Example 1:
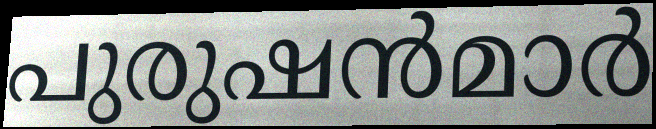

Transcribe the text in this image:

പുരുഷൻമാർ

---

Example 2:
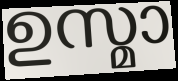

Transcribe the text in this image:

ഉസ്മാ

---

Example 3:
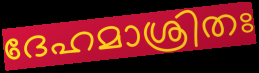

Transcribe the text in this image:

ദേഹമാശ്രിതഃ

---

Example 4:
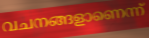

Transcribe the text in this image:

വചനങ്ങളാണെന്ന്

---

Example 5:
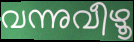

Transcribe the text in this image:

വന്നുവീഴൂ